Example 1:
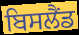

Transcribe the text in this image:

ਬਿਸਲੈਂਡ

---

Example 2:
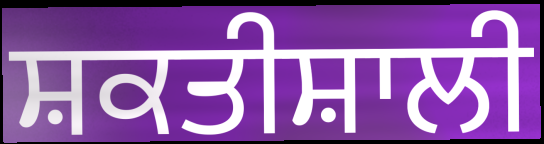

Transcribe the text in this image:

ਸ਼ਕਤੀਸ਼ਾਲੀ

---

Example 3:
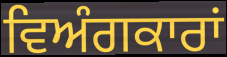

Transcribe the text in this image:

ਵਿਅੰਗਕਾਰਾਂ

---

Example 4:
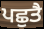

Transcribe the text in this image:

ਪਛੁਤੈ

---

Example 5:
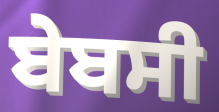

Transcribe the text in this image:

ਬੇਬਸੀ